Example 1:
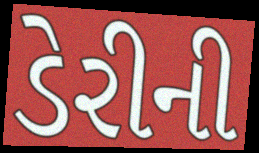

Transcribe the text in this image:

ડેરીની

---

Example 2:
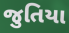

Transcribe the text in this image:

જુતિયા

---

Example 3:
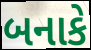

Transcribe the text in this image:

બનાકે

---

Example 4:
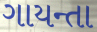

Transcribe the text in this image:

ગાયન્તા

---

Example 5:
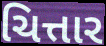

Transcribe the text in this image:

ચિત્તાર